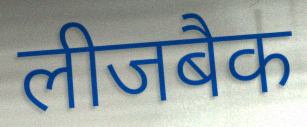
लीजबैक